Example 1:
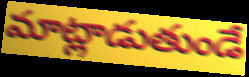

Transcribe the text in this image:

మాట్లాడుతుండే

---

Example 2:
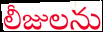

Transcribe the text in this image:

లీజులను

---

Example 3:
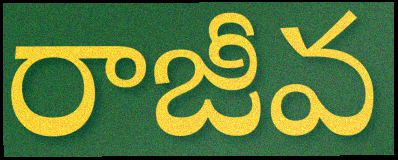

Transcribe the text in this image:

రాజీవ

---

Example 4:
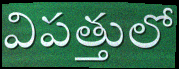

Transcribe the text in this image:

విపత్తులో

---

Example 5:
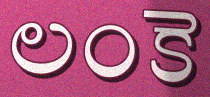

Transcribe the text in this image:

లంకె